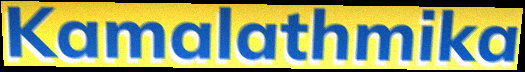
Kamalathmika